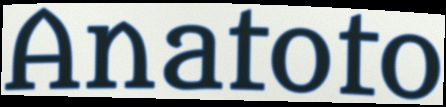
Anatoto